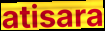
atisara